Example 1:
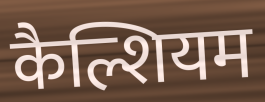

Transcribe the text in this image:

कैल्शियम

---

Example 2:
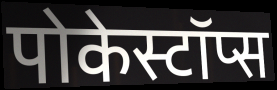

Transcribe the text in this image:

पोकेस्टॉप्स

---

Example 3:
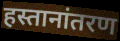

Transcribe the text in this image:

हस्तानांतरण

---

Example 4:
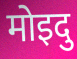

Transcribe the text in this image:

मोइदु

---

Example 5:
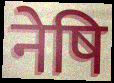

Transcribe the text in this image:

नेषि